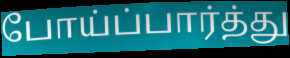
போய்ப்பார்த்து